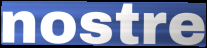
nostre